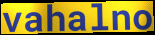
vahalno